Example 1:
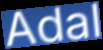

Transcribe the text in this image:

Adal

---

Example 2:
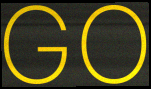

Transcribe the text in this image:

GO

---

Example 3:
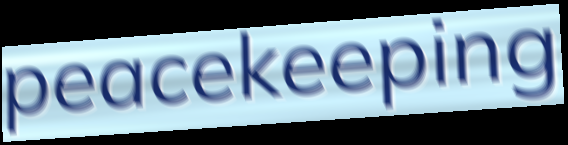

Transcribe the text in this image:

peacekeeping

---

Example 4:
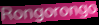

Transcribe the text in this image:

Rongorongo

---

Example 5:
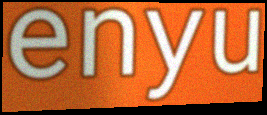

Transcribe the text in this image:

enyu